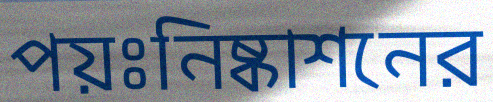
পয়ঃনিষ্কাশনের